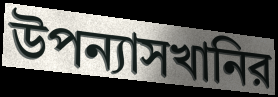
উপন্যাসখানির